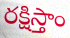
రక్షిస్తాం